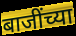
बाजींच्या